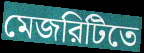
মেজরিটিতে